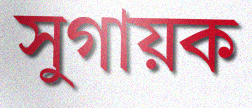
সুগায়ক